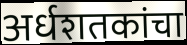
अर्धशतकांचा